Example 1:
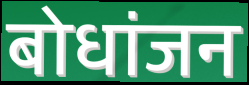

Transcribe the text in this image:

बोधांजन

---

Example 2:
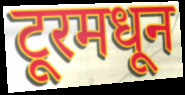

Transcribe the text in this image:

टूरमधून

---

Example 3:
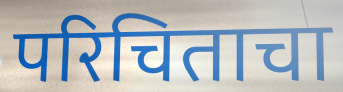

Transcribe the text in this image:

परिचिताचा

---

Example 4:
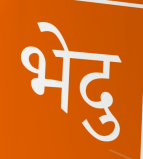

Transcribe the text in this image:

भेदु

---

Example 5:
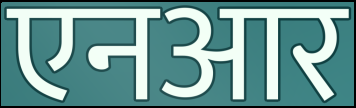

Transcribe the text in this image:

एनआर